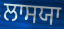
ਲਾਸਯਾ